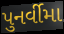
પુનર્વીમા